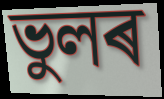
ভুলৰ